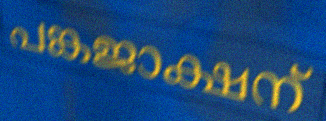
പങ്കജാക്ഷന്